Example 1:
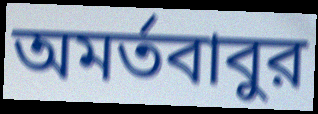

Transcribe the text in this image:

অমর্তবাবুর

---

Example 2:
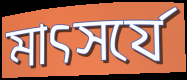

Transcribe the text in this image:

মাৎসর্যে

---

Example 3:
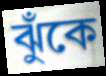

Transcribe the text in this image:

ঝুঁকে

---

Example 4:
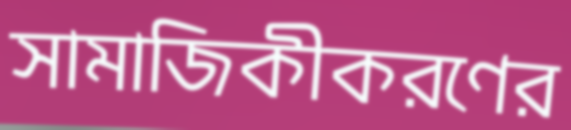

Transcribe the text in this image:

সামাজিকীকরণের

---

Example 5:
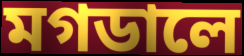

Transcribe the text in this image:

মগডালে